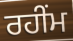
ਰਹੀਂਮ